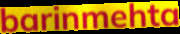
barinmehta